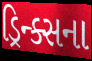
ડ્રિન્ક્સના